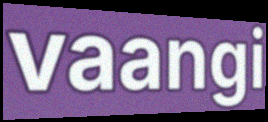
vaangi